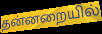
தன்னறையில்